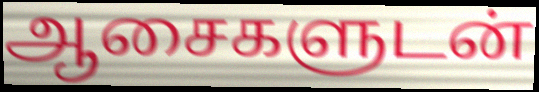
ஆசைகளுடன்